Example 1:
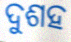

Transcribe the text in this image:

ଦୁଶହ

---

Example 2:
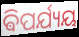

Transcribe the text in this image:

ଵିପର୍ଯ୍ୟୟ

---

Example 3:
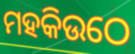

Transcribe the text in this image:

ମହକିଉଠେ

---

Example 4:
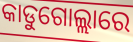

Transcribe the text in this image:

କାଡୁଗୋଲ୍ଲାରେ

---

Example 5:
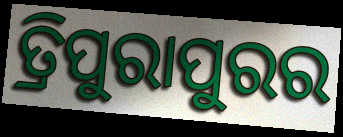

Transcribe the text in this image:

ତ୍ରିପୁରାପୁରର